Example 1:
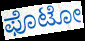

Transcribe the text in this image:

ಫೊಟೋ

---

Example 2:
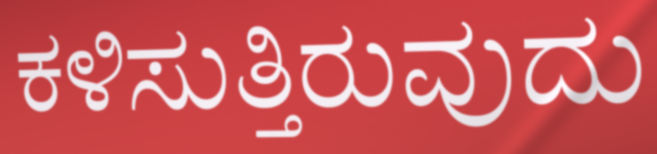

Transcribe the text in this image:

ಕಳಿಸುತ್ತಿರುವುದು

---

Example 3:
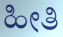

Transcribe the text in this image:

ಹೀತಿ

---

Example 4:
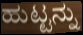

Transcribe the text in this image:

ಹುಟ್ಟನ್ನು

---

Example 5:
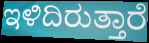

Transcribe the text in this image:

ಇಳಿದಿರುತ್ತಾರೆ